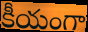
కీయంగా